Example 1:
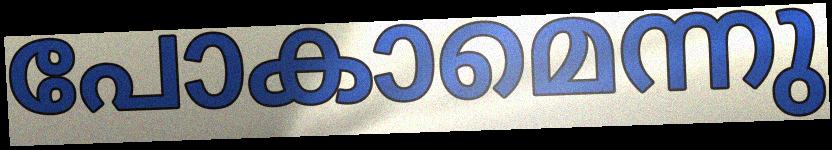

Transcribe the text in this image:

പോകാമെന്നു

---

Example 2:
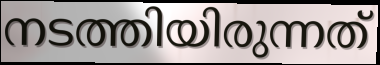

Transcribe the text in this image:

നടത്തിയിരുന്നത്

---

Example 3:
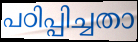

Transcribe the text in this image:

പഠിപ്പിച്ചതാ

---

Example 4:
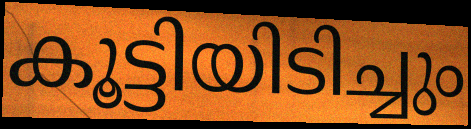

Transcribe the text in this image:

കൂട്ടിയിടിച്ചും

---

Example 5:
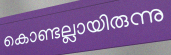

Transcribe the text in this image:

കൊണ്ടല്ലായിരുന്നു